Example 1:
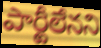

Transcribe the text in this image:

పార్టీలేనని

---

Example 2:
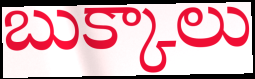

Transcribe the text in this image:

బుక్కాలు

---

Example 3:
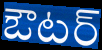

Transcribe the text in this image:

ఔటర్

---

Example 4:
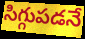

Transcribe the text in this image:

సిగ్గుపడనే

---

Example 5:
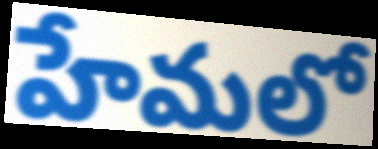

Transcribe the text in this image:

హేమలో